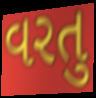
વરતુ